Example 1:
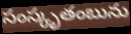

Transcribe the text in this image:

సంస్కృతంబును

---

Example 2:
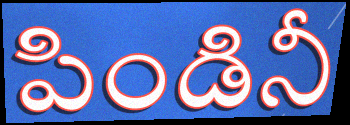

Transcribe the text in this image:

పిండినీ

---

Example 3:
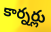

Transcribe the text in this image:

కార్నర్లు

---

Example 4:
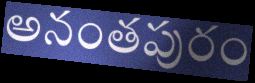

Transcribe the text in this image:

అనంతపురం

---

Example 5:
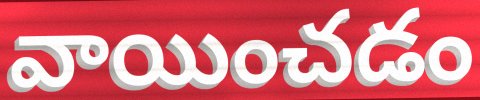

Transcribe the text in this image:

వాయించడం